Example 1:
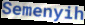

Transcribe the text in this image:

Semenyih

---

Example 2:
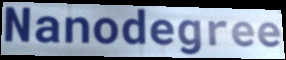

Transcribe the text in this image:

Nanodegree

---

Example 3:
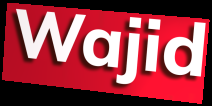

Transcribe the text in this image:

Wajid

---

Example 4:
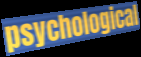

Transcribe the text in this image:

psychological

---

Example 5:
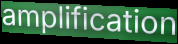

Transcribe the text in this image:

amplification